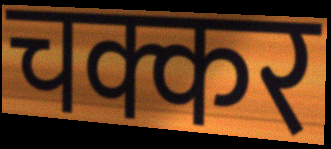
चक्‍कर